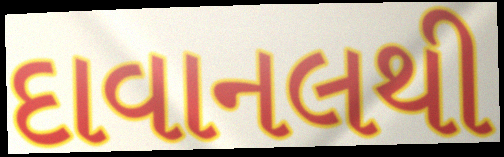
દાવાનલથી